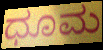
ಧೂಮ